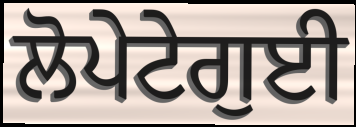
ਲੋਪੇਟੇਗੁਈ